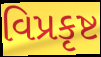
વિપ્રકૃષ્ટ